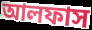
আলফাস